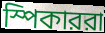
স্পিকাররা